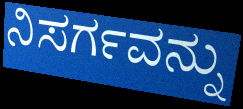
ನಿಸರ್ಗವನ್ನು